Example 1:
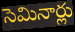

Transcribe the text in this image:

సెమినార్లు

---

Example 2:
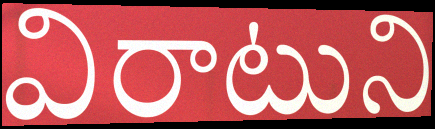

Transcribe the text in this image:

విరాటుని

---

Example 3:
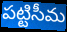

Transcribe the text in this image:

పట్టిసీమ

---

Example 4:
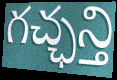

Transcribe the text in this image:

గచ్ఛన్తి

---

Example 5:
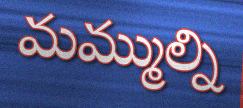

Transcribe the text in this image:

మమ్ముల్ని